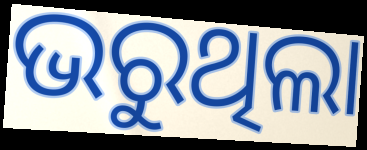
ଭରୁଥିଲା